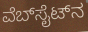
ವೆಬ್‍ಸೈಟ್‍ನ